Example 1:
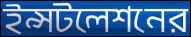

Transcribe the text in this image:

ইন্সটলেশনের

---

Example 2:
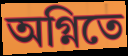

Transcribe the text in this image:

অগ্নিতে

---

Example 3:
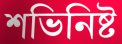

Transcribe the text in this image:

শভিনিষ্ট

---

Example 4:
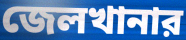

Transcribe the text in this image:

জেলখানার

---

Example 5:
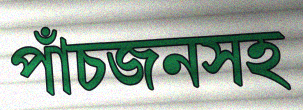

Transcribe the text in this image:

পাঁচজনসহ